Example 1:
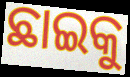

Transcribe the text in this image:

ଛାଇକୁ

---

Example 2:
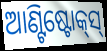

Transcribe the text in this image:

ଆଣ୍ଟିଷ୍ଟୋକ୍‍ସ୍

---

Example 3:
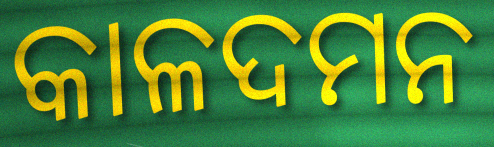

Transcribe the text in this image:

କାଳଦମନ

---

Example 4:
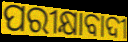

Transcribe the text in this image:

ପରୀକ୍ଷାବାଦୀ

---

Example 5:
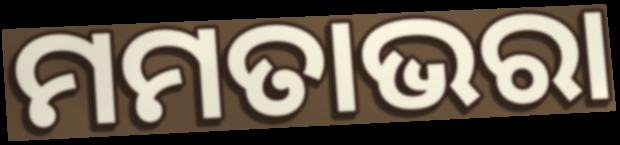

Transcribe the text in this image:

ମମତାଭରା